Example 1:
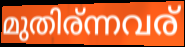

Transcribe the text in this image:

മുതിര്ന്നവര്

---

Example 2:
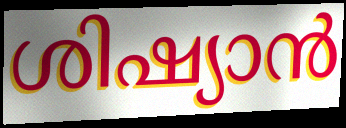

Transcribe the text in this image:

ശിഷ്യാൻ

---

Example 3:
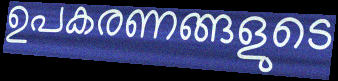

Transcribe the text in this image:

ഉപകരണങ്ങളുടെ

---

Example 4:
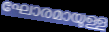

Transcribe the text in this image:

ഘോരമായുള്ള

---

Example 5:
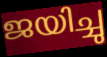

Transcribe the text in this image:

ജയിച്ചു